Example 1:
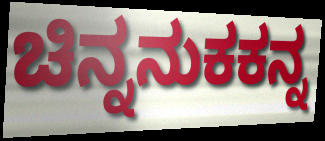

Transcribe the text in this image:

ಚಿನ್ನನುಕಕನ್ನ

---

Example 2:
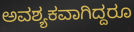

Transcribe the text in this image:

ಅವಶ್ಯಕವಾಗಿದ್ದರೂ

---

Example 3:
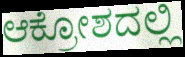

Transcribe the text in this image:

ಆಕ್ರೋಶದಲ್ಲಿ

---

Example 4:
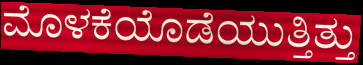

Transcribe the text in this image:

ಮೊಳಕೆಯೊಡೆಯುತ್ತಿತ್ತು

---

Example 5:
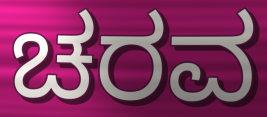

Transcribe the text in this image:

ಚರವ